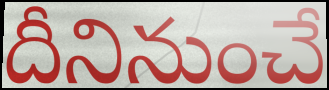
దీనినుంచే